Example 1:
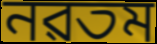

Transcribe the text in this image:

নৱতম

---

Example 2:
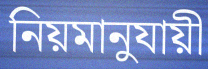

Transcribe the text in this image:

নিয়মানুযায়ী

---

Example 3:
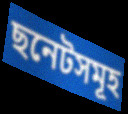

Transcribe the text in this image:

ছনেটসমূহ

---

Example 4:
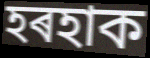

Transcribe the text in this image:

হৰহাক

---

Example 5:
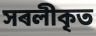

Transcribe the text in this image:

সৰলীকৃত